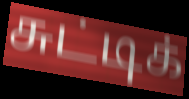
சுட்டிக்